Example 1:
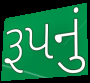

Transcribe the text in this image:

રૂપનું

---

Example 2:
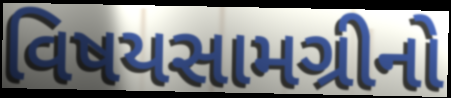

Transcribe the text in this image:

વિષયસામગ્રીનો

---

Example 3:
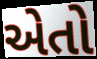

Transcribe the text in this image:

એતો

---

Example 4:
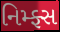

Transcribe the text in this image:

નિમ્ફ્સ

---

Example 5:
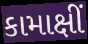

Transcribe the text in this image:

કામાક્ષીં